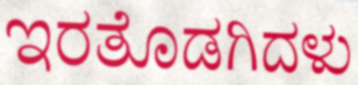
ಇರತೊಡಗಿದಳು